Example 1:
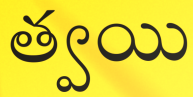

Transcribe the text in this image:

త్వయి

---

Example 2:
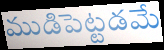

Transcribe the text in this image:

ముడిపెట్టడమే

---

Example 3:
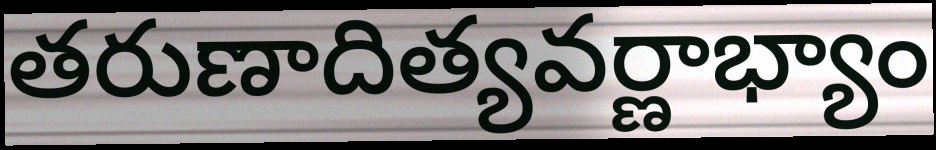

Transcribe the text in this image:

తరుణాదిత్యవర్ణాభ్యాం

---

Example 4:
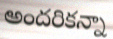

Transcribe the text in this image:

అందరికన్నా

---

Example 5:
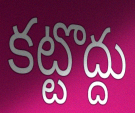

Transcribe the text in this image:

కట్టొద్దు